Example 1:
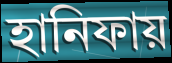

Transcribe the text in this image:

হানিফায়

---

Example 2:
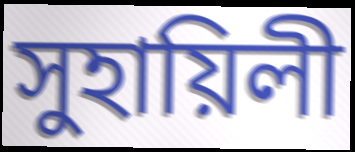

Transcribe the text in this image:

সুহায়িলী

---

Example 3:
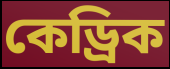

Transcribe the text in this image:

কেড্রিক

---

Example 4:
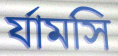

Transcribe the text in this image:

র্যামসি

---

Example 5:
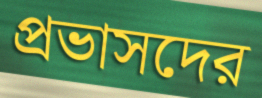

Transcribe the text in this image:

প্রভাসদের